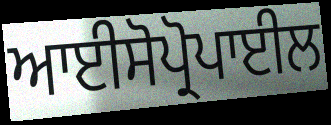
ਆਈਸੋਪ੍ਰੋਪਾਈਲ